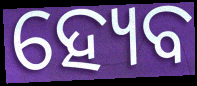
ହ୍ୟେବ